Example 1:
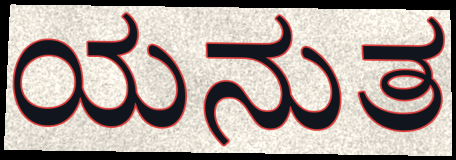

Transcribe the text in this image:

ಯನುತ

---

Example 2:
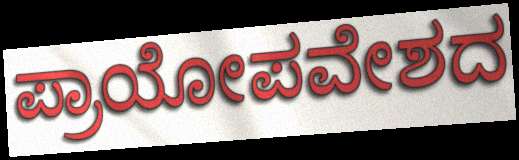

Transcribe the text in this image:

ಪ್ರಾಯೋಪವೇಶದ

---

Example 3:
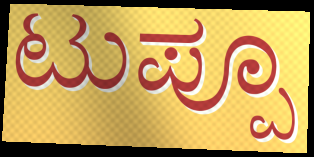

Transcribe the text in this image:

ಟುಪ್ಪೂ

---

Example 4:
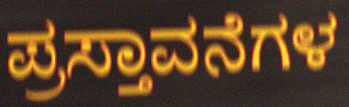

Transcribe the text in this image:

ಪ್ರಸ್ತಾವನೆಗಳ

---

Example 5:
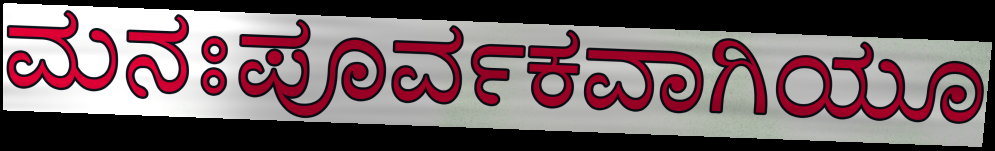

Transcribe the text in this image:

ಮನಃಪೂರ್ವಕವಾಗಿಯೂ